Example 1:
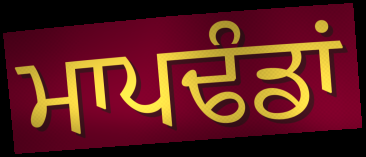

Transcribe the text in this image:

ਮਾਪਢੰਡਾਂ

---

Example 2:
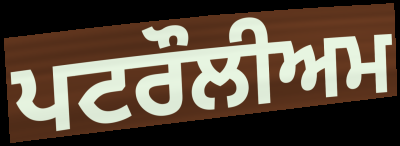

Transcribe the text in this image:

ਪਟਰੌਲੀਅਮ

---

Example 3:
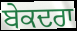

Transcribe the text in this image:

ਬੇਕਦਰਾ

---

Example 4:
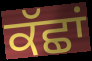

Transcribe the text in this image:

ਕੱਛਾਂ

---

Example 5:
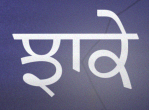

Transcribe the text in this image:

ਝਾਕੇ